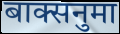
बाक्सनुमा